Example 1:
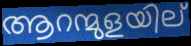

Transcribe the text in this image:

ആറന്മുളയില്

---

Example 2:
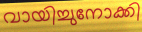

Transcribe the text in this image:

വായിച്ചുനോക്കി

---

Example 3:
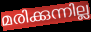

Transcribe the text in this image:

മരിക്കുന്നില്ല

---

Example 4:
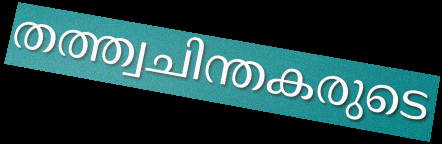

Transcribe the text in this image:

തത്ത്വചിന്തകരുടെ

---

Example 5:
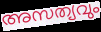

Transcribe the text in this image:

അസത്യവും